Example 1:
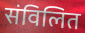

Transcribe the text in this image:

संविलित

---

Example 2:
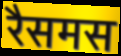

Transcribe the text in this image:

रैसमस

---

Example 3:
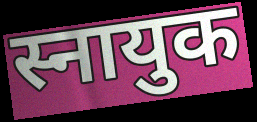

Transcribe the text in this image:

स्नायुक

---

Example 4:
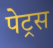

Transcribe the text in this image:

पेट्रस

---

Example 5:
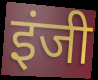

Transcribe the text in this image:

इंजी